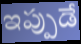
ఇప్పుడే